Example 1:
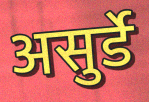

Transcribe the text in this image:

असुर्डे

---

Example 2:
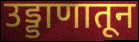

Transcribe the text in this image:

उड्डाणातून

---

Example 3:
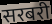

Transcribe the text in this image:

सरबरी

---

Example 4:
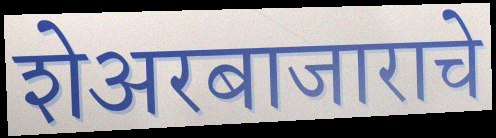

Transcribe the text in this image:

शेअरबाजाराचे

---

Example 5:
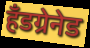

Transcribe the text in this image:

हँडग्रेनेड